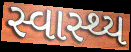
સ્વાસ્થ્ય